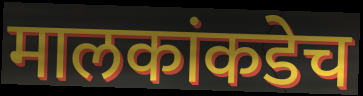
मालकांकडेच